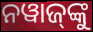
ନୱାଜ୍‍ଙ୍କୁ